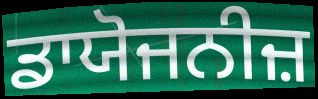
ਡਾਯੋਜਨੀਜ਼